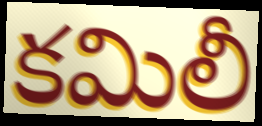
కమిలీ